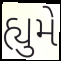
હ્યુમે